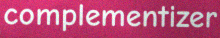
complementizer